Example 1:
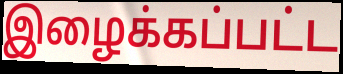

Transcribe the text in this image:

இழைக்கப்பட்ட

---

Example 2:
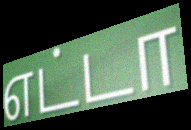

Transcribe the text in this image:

எட்டா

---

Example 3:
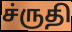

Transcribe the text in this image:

ச்ருதி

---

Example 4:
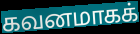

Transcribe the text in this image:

கவனமாகக்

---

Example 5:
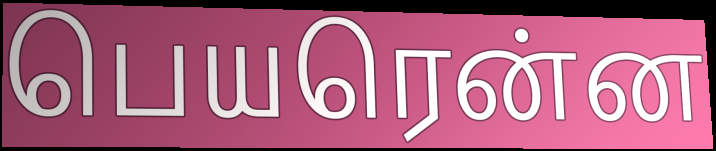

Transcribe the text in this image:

பெயரென்ன